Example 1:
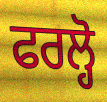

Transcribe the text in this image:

ਫਰਲ੍ਹੋ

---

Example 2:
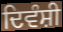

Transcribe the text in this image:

ਦਿਵੰਸ਼ੀ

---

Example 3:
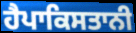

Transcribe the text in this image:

ਹੈਪਾਕਿਸਤਾਨੀ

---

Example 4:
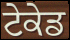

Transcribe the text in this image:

ਟੇਕੇਡ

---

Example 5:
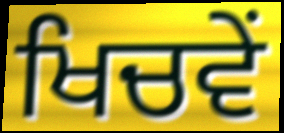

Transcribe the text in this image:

ਖਿਚਵੇਂ